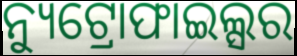
ନ୍ୟୁଟ୍ରୋଫାଇଲ୍ସର